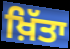
ਖ਼ਿੱਤਾ